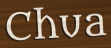
Chua